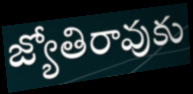
జ్యోతిరావుకు